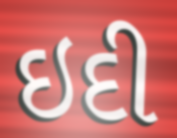
ઇદી